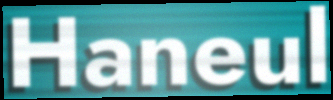
Haneul